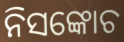
ନିସଙ୍କୋଚ